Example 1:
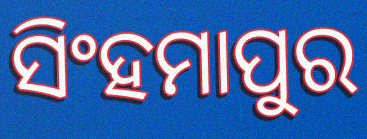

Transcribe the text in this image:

ସିଂହମାପୁର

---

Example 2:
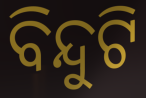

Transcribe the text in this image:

ବିନ୍ଦୁଟି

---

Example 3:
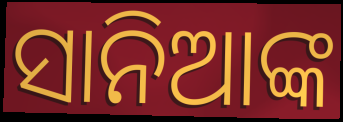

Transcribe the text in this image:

ସାନିଆଙ୍କ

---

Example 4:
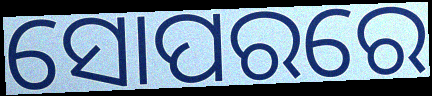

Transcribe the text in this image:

ସୋପରରେ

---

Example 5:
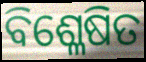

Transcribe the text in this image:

ବିଶ୍ଳେଷିତ